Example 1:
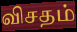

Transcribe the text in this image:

விசதம்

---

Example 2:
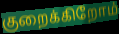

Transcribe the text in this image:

குறைக்கிறோம்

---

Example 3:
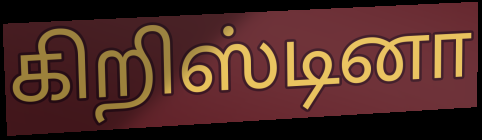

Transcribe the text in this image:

கிறிஸ்டினா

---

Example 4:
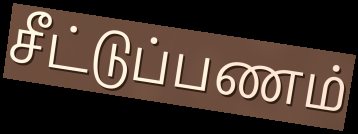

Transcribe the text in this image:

சீட்டுப்பணம்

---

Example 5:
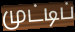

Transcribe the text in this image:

முட்டிப்